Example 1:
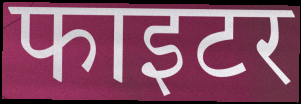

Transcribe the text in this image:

फाइटर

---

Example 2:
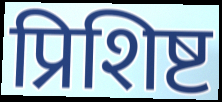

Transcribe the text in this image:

प्रिशिष्ट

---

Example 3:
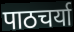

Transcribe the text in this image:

पाठचर्या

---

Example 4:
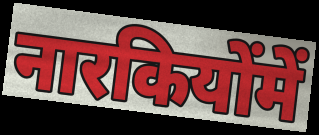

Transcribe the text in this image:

नारकियोंमें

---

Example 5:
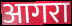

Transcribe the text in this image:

आगरा